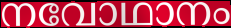
നവോഥാനം